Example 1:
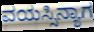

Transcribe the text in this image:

ವಯಸ್ಸಿನ್ಯಾಗ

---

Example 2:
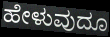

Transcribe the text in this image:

ಹೇಳುವುದೂ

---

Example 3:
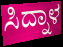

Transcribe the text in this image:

ಸಿದ್ನಾಳ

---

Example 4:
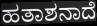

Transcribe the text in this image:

ಹತಾಶನಾದೆ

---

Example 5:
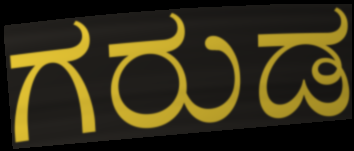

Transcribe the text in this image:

ಗರುಡ